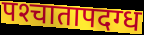
पश्चातापदग्ध